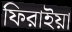
ফিরাইয়া